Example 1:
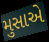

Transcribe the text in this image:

મુસાએ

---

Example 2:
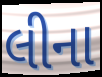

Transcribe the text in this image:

લીના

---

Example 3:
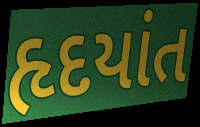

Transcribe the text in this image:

હૃદયાંત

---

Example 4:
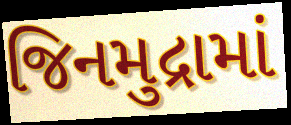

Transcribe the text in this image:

જિનમુદ્રામાં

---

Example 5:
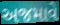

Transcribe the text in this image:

અજમાવે